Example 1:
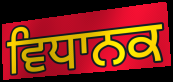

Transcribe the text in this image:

ਵਿਧਾਨਕ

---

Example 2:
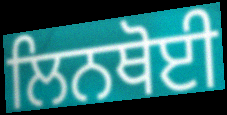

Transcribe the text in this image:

ਲਿਨਥੋਈ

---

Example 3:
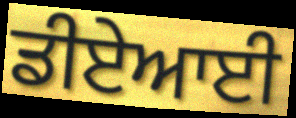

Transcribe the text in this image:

ਡੀਏਆਈ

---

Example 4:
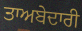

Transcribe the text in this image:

ਤਾਅਬੇਦਾਰੀ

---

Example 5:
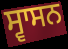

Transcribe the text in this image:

ਸ੍ਵਾਸਨ